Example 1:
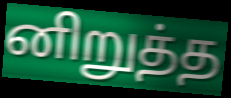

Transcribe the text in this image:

னிறுத்த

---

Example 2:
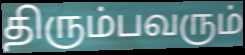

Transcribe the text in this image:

திரும்பவரும்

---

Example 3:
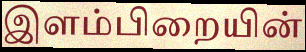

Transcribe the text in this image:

இளம்பிறையின்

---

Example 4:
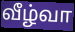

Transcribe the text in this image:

வீழ்வா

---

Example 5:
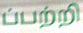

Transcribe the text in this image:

ப்பற்றி